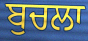
ਬੁਚਲਾ